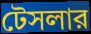
টেসলার